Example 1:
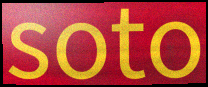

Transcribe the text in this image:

soto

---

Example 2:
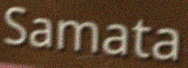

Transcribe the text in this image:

Samata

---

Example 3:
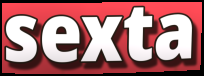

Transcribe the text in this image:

sexta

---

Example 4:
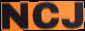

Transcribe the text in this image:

NCJ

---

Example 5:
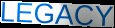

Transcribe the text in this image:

LEGACY